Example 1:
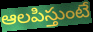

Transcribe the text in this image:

ఆలపిస్తుంటే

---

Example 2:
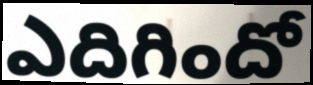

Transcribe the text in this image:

ఎదిగిందో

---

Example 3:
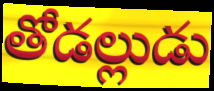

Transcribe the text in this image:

తోడల్లుడు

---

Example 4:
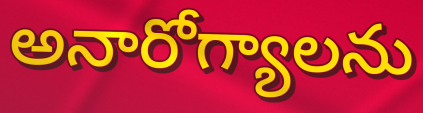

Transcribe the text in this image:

అనారోగ్యాలను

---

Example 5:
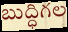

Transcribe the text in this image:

బుద్ధిగల